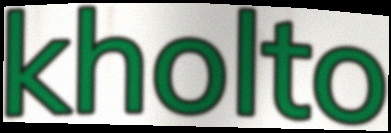
kholto